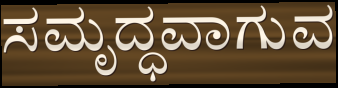
ಸಮೃದ್ಧವಾಗುವ